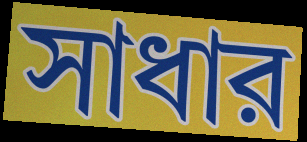
সাধার